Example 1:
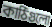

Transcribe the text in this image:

কাঠিগুলো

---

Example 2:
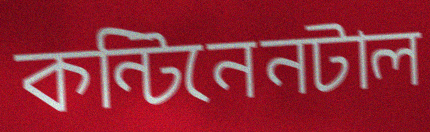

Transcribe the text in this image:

কন্টিনেনটাল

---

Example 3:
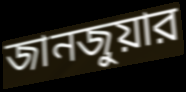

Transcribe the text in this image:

জানজুয়ার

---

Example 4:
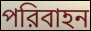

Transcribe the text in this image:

পরিবাহন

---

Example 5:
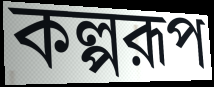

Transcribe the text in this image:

কল্পরূপ